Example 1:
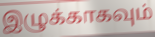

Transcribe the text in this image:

இழுக்காகவும்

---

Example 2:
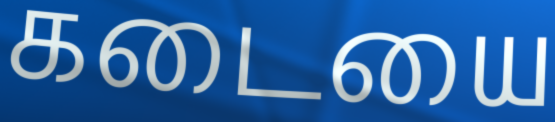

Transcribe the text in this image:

கடையை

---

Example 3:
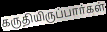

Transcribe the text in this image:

கருதியிருப்பார்கள்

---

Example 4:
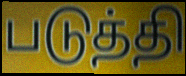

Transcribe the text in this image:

படுத்தி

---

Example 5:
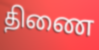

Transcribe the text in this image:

திணை